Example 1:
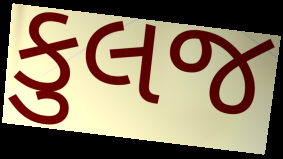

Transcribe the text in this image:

કુલજ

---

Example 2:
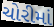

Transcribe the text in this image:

ચોરીમાં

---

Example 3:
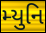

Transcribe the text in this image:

મ્યુનિ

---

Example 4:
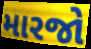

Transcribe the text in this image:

મારજો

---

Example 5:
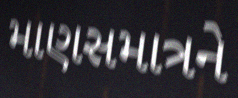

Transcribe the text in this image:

માણસમાત્રને